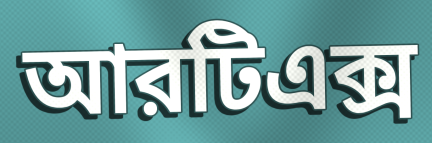
আরটিএক্স